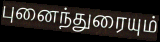
புனைந்துரையும்